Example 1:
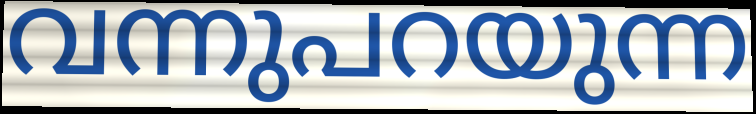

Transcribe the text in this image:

വന്നുപറയുന്ന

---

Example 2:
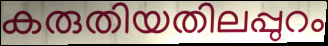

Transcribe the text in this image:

കരുതിയതിലപ്പുറം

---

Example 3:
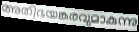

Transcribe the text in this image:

അതിഭയങ്കരവുമാകുന്നു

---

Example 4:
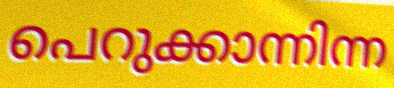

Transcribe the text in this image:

പെറുക്കാന്നിന്ന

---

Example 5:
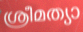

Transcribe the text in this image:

ശ്രീമത്യാ